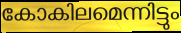
കോകിലമെന്നിട്ടും